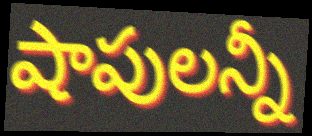
షాపులన్నీ